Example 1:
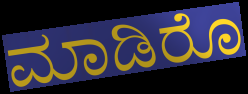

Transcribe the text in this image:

ಮಾಡಿರೊ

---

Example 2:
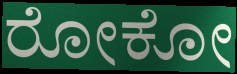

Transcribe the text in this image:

ರೋಕೋ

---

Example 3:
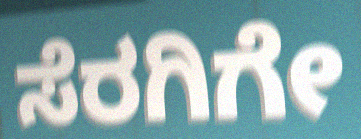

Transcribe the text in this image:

ಸೆರಗಿಗೇ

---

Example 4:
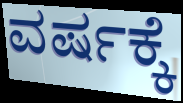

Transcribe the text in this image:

ವರ್ಷಕ್ಕೆ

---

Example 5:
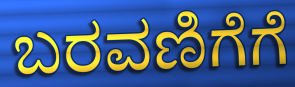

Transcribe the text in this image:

ಬರವಣಿಗೆಗೆ